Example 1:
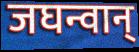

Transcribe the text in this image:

जघन्वान्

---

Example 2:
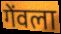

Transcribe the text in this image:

गेंवला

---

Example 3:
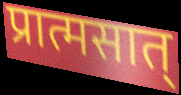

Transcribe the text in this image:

प्रात्मसात्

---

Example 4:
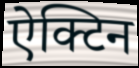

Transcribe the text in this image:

ऐक्टिन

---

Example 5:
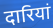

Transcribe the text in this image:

दारियां